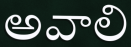
అవాలి